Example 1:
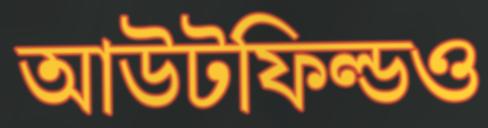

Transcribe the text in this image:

আউটফিল্ডও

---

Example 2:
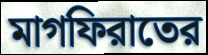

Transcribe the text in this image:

মাগফিরাতের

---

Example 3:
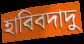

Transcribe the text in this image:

হাবিবদাদু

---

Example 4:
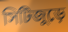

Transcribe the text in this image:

সিটিজুড়ে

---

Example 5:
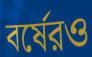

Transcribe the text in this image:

বর্ষেরও